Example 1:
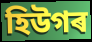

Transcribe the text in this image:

হিউগৰ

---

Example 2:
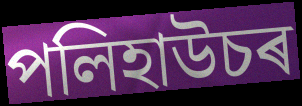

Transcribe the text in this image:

পলিহাউচৰ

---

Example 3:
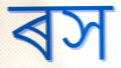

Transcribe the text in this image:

ৰস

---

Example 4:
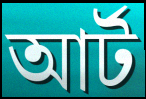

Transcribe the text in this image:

আৰ্ট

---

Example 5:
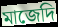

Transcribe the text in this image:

মাজেদি